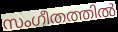
സംഗീതത്തിൽ